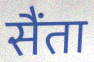
सैंता